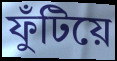
ফুঁটিয়ে